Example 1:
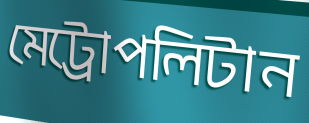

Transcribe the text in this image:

মেট্রোপলিটান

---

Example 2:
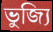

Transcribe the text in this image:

ভুজ্যি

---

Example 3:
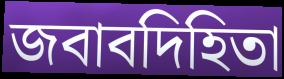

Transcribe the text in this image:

জবাবদিহিতা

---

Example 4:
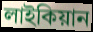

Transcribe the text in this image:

লাইকিয়ান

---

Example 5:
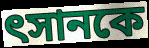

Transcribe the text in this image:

ৎসানকে